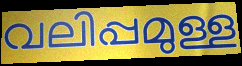
വലിപ്പമുള്ള